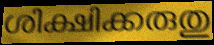
ശിക്ഷിക്കരുതു